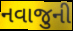
નવાજુની